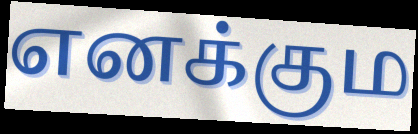
எனக்கும